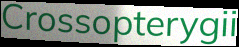
Crossopterygii